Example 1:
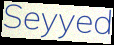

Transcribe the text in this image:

Seyyed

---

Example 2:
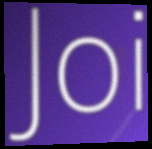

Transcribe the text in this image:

Joi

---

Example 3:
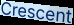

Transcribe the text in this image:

Crescent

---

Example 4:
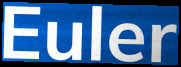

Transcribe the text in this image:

Euler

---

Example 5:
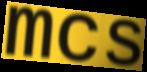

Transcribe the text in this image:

mcs